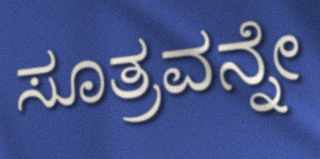
ಸೂತ್ರವನ್ನೇ